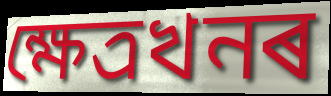
ক্ষেত্ৰখনৰ